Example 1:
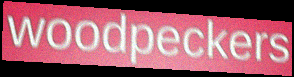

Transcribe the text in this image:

woodpeckers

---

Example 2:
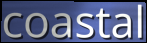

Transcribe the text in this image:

coastal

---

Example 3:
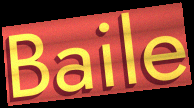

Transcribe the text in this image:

Baile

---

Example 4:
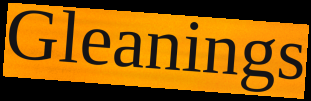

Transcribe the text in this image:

Gleanings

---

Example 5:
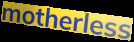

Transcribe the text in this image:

motherless